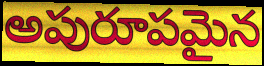
అపురూపమైన